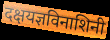
दक्षयज्ञविनाशिनी